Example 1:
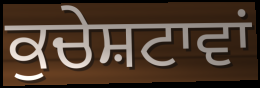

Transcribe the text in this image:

ਕੁਚੇਸ਼ਟਾਵਾਂ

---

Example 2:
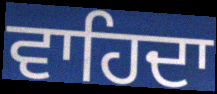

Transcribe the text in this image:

ਵਾਹਿਦਾ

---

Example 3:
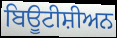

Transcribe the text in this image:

ਬਿਊਟੀਸ਼ੀਅਨ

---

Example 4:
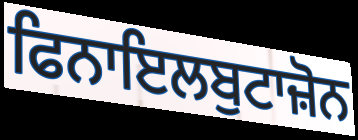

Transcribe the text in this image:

ਫਿਨਾਇਲਬੁਟਾਜ਼ੋਨ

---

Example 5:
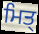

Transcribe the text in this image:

ਮਿਤ੍